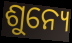
ଶୁନ୍ୟେ